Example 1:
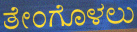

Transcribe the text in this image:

ತೇಂಗೊಳಲು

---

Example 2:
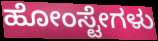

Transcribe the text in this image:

ಹೋಂಸ್ಟೇಗಳು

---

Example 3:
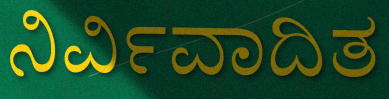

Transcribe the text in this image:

ನಿರ್ವಿವಾದಿತ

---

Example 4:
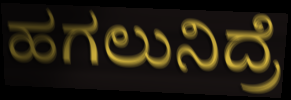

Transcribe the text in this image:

ಹಗಲುನಿದ್ರೆ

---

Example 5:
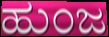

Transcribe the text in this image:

ಹುಂಜ